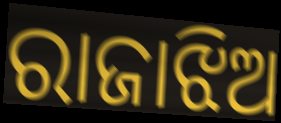
ରାଜାଝିଅ